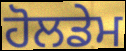
ਹੋਲਡੇਮ